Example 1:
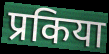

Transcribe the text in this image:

प्रकिया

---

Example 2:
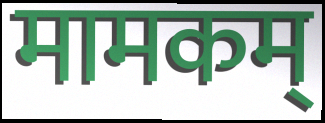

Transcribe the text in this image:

मामकम्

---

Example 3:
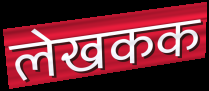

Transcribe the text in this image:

लेखकक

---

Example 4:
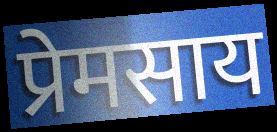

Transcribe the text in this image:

प्रेमसाय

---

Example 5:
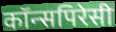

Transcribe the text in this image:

कॉन्सपिरेसी